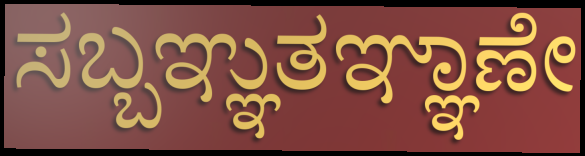
ಸಬ್ಬಞ್ಞುತಞ್ಞಾಣೇ